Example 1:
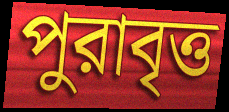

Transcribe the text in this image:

পুরাবৃত্ত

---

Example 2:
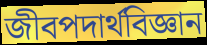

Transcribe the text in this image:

জীবপদার্থবিজ্ঞান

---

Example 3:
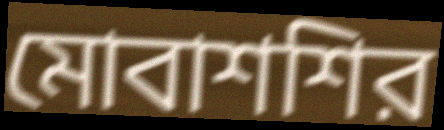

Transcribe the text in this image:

মোবাশশির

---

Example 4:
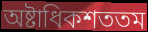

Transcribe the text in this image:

অষ্টাধিকশততম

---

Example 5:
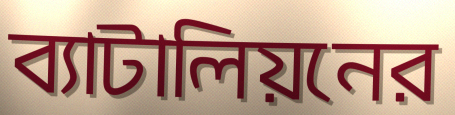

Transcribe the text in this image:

ব্যাটালিয়নের